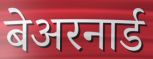
बेअरनार्ड